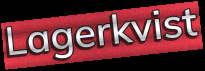
Lagerkvist